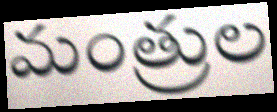
మంత్రుల